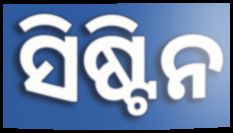
ସିଷ୍ଟିନ